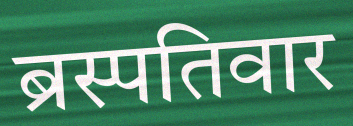
ब्रस्पतिवार